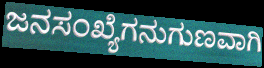
ಜನಸಂಖ್ಯೆಗನುಗುಣವಾಗಿ